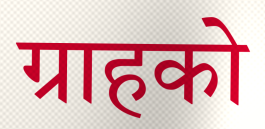
ग्राहको